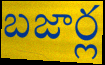
బజార్ల